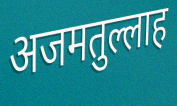
अजमतुल्लाह